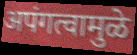
अपंगत्वामुळे